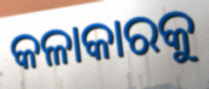
କଳାକାରକୁ